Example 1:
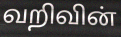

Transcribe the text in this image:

வறிவின்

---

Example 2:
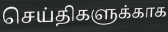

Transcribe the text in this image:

செய்திகளுக்காக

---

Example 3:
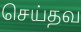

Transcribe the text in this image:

செய்தவ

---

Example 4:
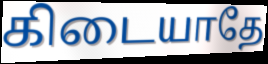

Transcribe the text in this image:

கிடையாதே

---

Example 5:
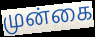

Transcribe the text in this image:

முன்கை